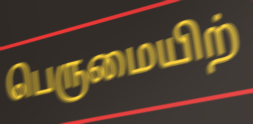
பெருமையிற்